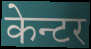
केन्टर